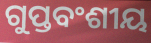
ଗୁପ୍ତବଂଶୀୟ